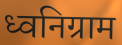
ध्वनिग्राम